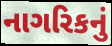
નાગરિકનું